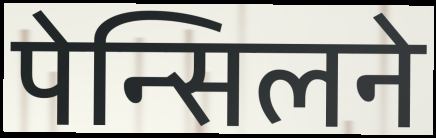
पेन्सिलने